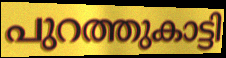
പുറത്തുകാട്ടി